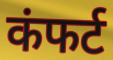
कंफर्ट